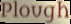
Plough